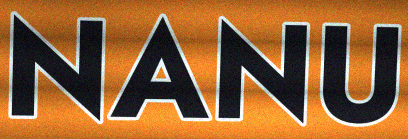
NANU